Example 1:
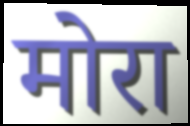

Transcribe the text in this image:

मोरा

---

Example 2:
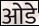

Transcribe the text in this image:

ओडे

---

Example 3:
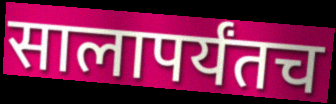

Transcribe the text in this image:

सालापर्यंतच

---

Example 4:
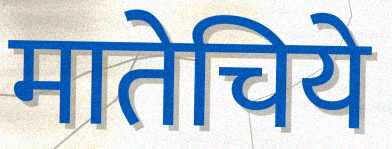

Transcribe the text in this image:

मातेचिये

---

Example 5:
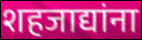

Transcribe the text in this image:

शहजाद्यांना